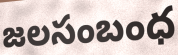
జలసంబంధ